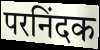
परनिंदक